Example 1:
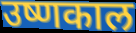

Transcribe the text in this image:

उष्णकाल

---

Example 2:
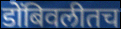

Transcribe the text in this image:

डोंबिवलीतच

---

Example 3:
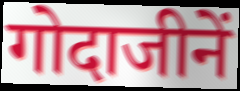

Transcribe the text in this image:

गोदाजीनें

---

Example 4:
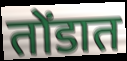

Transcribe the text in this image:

तोंडात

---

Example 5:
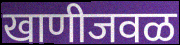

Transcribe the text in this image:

खाणीजवळ